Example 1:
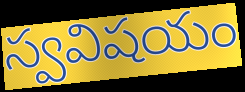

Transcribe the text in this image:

స్వవిషయం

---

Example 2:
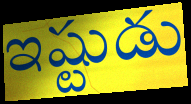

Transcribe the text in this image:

ఇష్టుడు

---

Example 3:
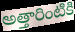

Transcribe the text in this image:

అత్తారింటికి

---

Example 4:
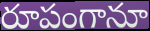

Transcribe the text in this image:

రూపంగానూ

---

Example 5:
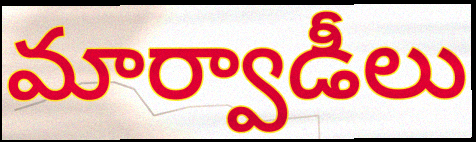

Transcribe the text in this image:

మార్వాడీలు